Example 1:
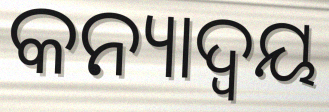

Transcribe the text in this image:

କନ୍ୟାଦ୍ୱୟ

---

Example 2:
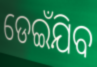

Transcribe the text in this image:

ଡେଇଁଯିବ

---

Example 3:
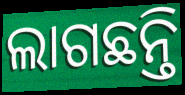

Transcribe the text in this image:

ଲାଗଛନ୍ତି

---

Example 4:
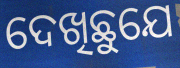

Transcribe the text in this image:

ଦେଖିଛୁଯେ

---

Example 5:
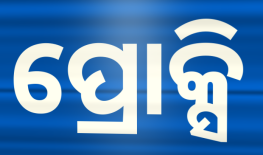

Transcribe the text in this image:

ପ୍ରୋକ୍ସି